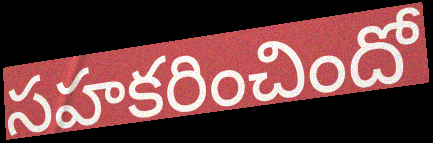
సహకరించిందో